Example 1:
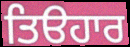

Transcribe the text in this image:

ਤਿੳਹਾਰ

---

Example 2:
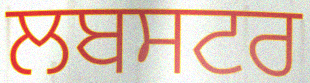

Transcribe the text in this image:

ਲਬਸਟਰ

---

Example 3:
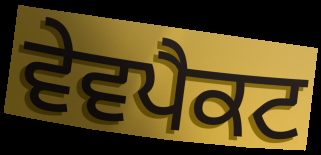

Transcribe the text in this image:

ਵੇਵਪੈਕਟ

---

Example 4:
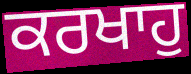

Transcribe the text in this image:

ਕਰਖਾਹੁ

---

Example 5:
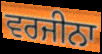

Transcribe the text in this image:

ਵਰਜੀਨਾ